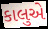
કાલુએ